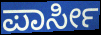
ಪಾರ್ಸೀ